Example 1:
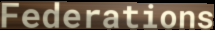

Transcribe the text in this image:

Federations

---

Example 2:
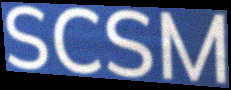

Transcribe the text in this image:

SCSM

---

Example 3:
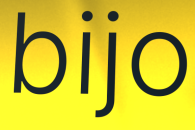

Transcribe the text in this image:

bijo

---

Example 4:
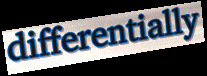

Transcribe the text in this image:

differentially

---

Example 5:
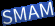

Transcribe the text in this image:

SMAM